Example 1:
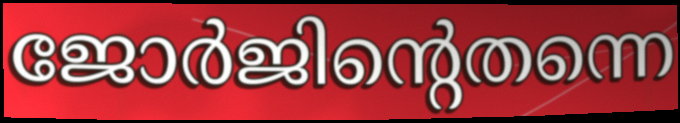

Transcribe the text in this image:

ജോർജിന്റെതന്നെ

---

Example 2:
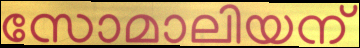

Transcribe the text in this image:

സോമാലിയന്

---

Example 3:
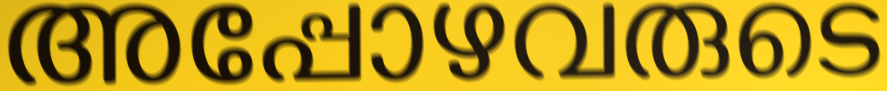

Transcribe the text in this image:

അപ്പോഴവരുടെ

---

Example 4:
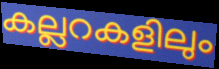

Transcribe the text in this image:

കല്ലറകളിലും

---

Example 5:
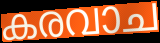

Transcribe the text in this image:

കരവാച